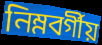
নিম্নবর্গীয়